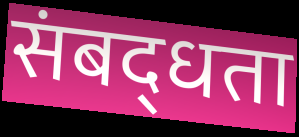
संबद्धता